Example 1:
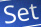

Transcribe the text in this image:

Set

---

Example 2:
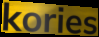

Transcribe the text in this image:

kories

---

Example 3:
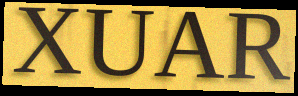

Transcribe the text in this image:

XUAR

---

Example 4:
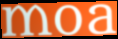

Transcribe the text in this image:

moa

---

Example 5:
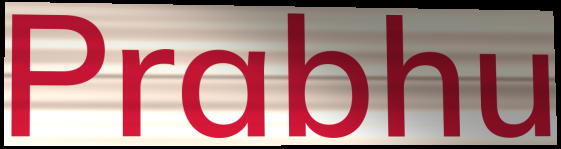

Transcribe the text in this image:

Prabhu